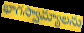
భాగస్వామ్యాలను